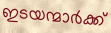
ഇടയന്മാർക്ക്